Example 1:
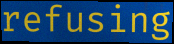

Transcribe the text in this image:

refusing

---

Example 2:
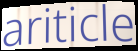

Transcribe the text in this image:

ariticle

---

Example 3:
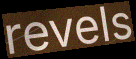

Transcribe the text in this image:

revels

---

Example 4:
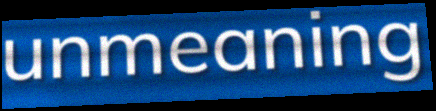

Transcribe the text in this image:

unmeaning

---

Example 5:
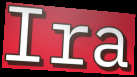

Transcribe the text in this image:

Ira